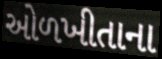
ઓળખીતાના